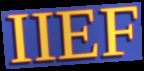
IIEF